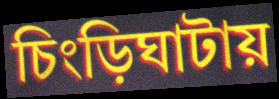
চিংড়িঘাটায়